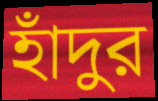
হাঁদুর